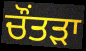
ਚੌਂਤੜਾ